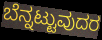
ಬೆನ್ನಟ್ಟುವುದರ